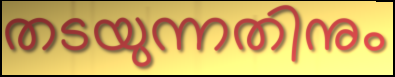
തടയുന്നതിനും